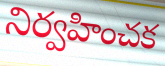
నిర్వహించక